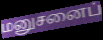
மனுசனைப்